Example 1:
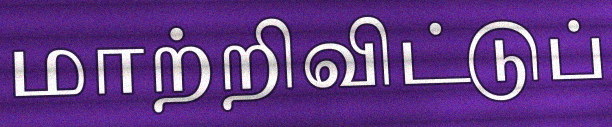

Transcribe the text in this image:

மாற்றிவிட்டுப்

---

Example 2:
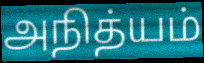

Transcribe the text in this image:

அநித்யம்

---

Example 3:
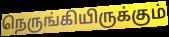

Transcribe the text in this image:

நெருங்கியிருக்கும்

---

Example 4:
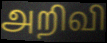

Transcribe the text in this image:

அறிவி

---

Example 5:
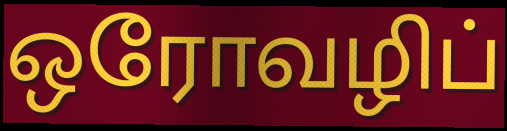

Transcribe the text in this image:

ஒரோவழிப்